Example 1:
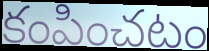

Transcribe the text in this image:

కంపించటం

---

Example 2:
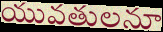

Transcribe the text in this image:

యువతులనూ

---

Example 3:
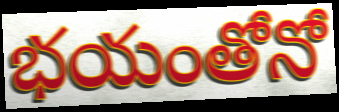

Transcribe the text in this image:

భయంతోనో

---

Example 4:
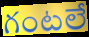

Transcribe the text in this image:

గంటలే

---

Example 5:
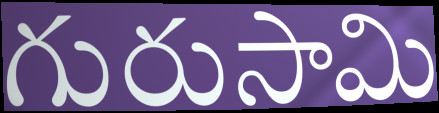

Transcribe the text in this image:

గురుసామి